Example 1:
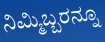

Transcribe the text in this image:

ನಿಮ್ಮಿಬ್ಬರನ್ನೂ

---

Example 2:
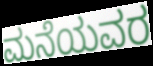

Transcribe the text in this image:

ಮನೆಯವರ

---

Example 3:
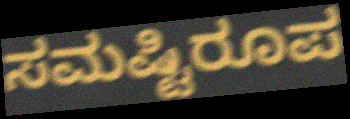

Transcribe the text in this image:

ಸಮಷ್ಟಿರೂಪ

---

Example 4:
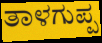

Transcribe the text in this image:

ತಾಳಗುಪ್ಪ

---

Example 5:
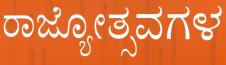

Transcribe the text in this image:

ರಾಜ್ಯೋತ್ಸವಗಳ